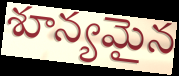
శూన్యమైన